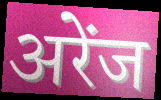
अरेंज